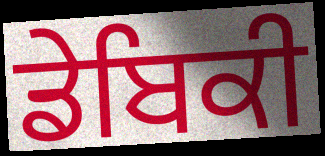
ਡੇਬਿਕੀ